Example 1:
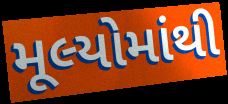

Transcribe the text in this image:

મૂલ્યોમાંથી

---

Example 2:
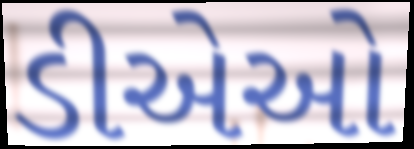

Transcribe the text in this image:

ડીએઓ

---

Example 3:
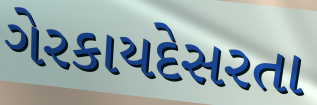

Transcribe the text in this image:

ગેરકાયદેસરતા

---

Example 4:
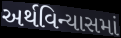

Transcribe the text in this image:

અર્થવિન્યાસમાં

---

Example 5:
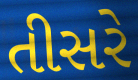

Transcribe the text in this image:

તીસરે